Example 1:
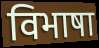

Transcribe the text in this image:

विभाषा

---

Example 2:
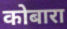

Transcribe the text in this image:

कोबारा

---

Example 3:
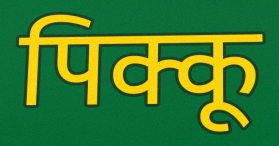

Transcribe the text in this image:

पिक्कू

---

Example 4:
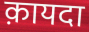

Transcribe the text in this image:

क़ायदा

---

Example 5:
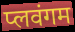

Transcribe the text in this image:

प्लवंगम